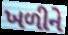
ખળીને